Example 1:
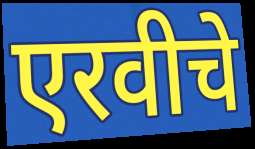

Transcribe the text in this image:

एरवीचे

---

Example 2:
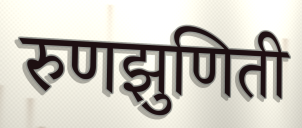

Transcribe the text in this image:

रुणझुणिती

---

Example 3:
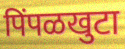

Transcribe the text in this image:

पिंपळखुटा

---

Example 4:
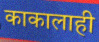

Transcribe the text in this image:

काकालाही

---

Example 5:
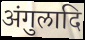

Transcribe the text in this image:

अंगुलादि